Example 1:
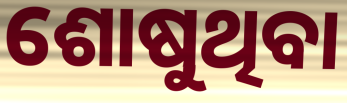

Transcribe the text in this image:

ଶୋଷୁଥିବା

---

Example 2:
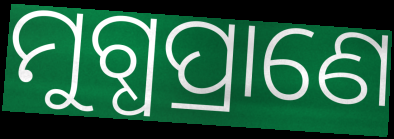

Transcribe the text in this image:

ମୁଗ୍ଧପ୍ରାଣେ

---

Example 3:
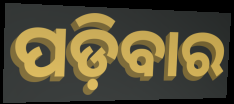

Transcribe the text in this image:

ପଡ଼ିବାର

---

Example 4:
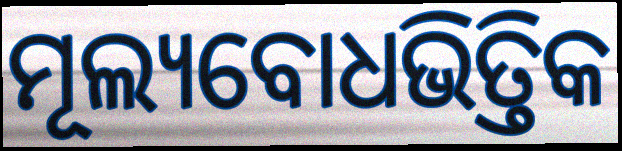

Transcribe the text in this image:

ମୂଲ୍ୟବୋଧଭିତ୍ତିକ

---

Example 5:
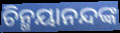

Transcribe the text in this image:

ଚିନ୍ମୟାନନ୍ଦଙ୍କ